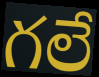
గలే